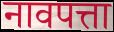
नावपत्ता